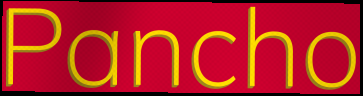
Pancho